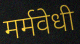
मर्मवेधी